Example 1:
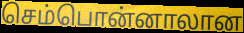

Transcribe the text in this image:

செம்பொன்னாலான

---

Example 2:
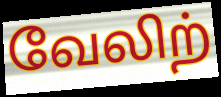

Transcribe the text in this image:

வேலிற்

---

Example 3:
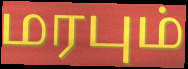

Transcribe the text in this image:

மரபும்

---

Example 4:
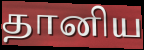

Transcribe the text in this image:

தானிய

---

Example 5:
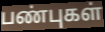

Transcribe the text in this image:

பண்புகள்